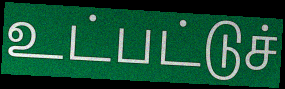
உட்பட்டுச்